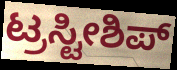
ಟ್ರಸ್ಟೀಶಿಪ್